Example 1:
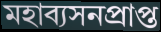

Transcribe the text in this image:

মহাব্যসনপ্রাপ্ত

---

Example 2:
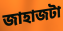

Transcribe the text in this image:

জাহাজটা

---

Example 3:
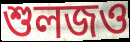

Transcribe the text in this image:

শুলজও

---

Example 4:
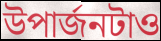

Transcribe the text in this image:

উপার্জনটাও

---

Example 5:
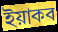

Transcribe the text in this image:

ইয়াকব